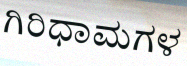
ಗಿರಿಧಾಮಗಳ